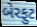
બેરફુટ